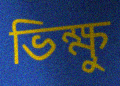
ভিক্ষু